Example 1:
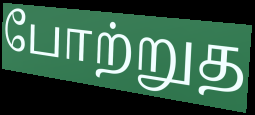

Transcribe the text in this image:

போற்றுத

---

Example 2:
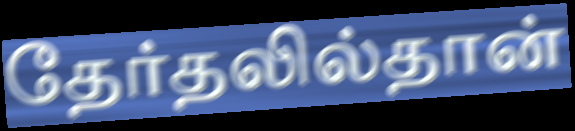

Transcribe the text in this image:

தேர்தலில்தான்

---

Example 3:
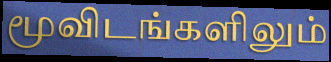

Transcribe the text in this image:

மூவிடங்களிலும்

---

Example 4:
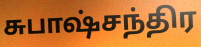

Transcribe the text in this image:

சுபாஷ்சந்திர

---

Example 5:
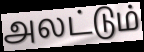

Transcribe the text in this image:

அலட்டும்